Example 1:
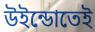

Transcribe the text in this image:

উইন্ডোতেই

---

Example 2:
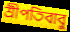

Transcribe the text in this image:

শ্রীপতিবাবু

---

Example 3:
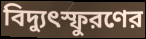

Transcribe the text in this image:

বিদ্যুৎস্ফুরণের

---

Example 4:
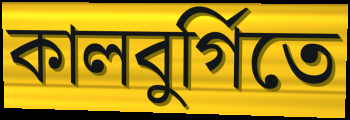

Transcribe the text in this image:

কালবুর্গিতে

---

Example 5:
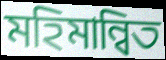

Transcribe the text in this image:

মহিমান্বিত